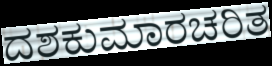
ದಶಕುಮಾರಚರಿತ